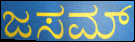
ಜಸಮ್